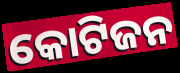
କୋଟିଜନ